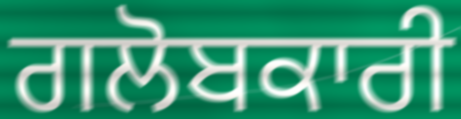
ਗਲੋਬਕਾਰੀ